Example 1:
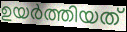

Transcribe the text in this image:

ഉയർത്തിയത്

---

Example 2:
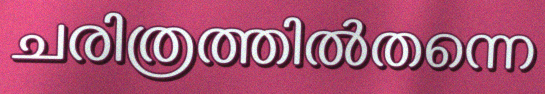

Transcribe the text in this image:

ചരിത്രത്തിൽതന്നെ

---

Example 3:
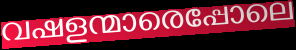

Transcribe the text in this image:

വഷളന്മാരെപ്പോലെ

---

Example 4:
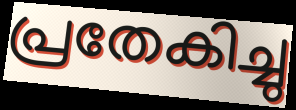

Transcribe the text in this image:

പ്രതേകിച്ചു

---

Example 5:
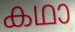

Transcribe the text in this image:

കഥാ